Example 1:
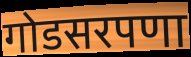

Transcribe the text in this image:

गोडसरपणा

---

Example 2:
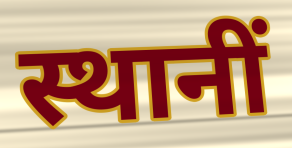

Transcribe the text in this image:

स्थानीं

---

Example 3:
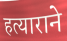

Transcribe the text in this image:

हत्याराने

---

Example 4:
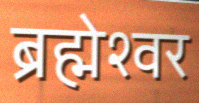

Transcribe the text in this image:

ब्रह्मेश्वर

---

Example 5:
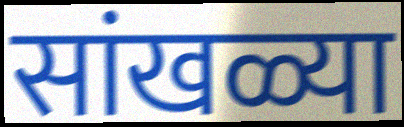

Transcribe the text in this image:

सांखळ्या